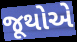
જૂથોએ